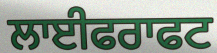
ਲਾਈਫਰਾਫਟ